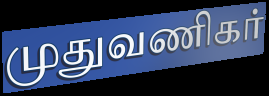
முதுவணிகர்